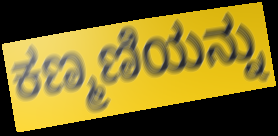
ಕಣ್ಮಣಿಯನ್ನು